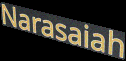
Narasaiah